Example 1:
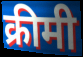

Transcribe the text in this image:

क्रीमी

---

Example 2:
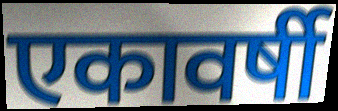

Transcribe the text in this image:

एकावर्षी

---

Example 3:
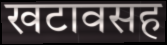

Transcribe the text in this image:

खटावसह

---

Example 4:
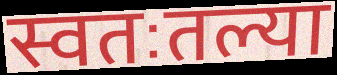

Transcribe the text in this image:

स्वतःतल्या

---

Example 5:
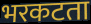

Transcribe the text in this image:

भरकटता